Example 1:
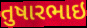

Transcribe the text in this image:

તુષારભાઇ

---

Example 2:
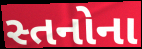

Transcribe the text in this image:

સ્તનોના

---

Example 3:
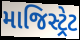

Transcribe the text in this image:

માજિસ્ટ્રેટ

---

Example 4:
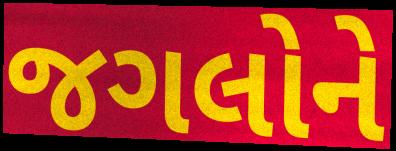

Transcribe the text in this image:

જગલોને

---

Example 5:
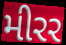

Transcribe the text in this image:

મીરર